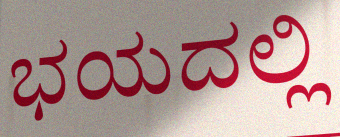
ಭಯದಲ್ಲಿ